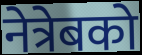
नेत्रेबको